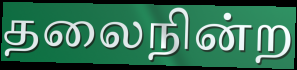
தலைநின்ற